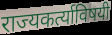
राज्यकर्त्याविषयी